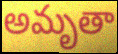
అమృతా